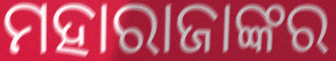
ମହାରାଜାଙ୍କର